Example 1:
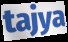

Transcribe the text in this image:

tajya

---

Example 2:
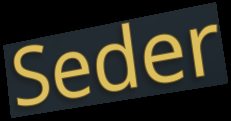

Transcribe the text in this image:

Seder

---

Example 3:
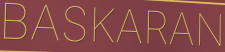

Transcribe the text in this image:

BASKARAN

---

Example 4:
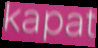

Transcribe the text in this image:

kapat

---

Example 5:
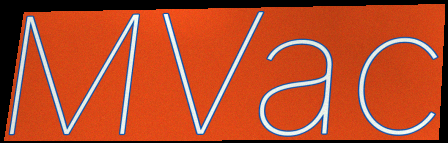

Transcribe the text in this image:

MVac